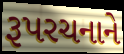
રૂપરચનાને